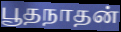
பூதநாதன்